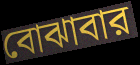
বোঝাবার